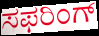
ಸಫರಿಂಗ್